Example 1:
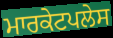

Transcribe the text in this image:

ਮਾਰਕੇਟਪਲੇਸ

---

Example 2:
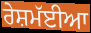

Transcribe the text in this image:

ਰੇਸ਼ਮੱਈਆ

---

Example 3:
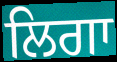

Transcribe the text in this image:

ਲਿਗਾ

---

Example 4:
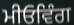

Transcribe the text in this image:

ਮੀਓਵਿੰਗ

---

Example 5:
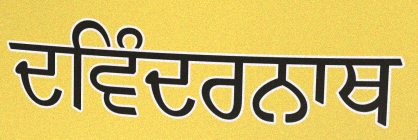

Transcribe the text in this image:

ਦਵਿੰਦਰਨਾਥ